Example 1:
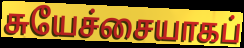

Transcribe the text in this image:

சுயேச்சையாகப்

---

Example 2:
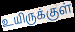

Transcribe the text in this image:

உயிருக்குள்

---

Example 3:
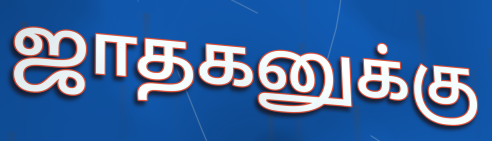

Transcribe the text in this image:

ஜாதகனுக்கு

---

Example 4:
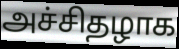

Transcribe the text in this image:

அச்சிதழாக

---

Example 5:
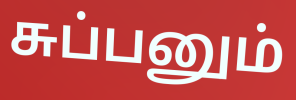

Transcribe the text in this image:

சுப்பனும்